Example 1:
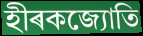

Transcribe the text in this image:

হীৰকজ্যোতি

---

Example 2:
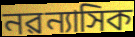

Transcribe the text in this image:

নৱন্যাসিক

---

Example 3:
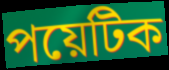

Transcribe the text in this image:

পয়েটিক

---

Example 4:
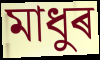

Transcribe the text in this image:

মাধুৰ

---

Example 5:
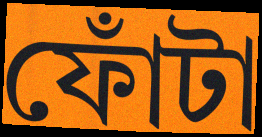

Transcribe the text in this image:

ফোঁটা